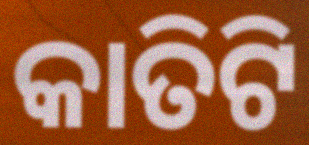
କାତିଟି